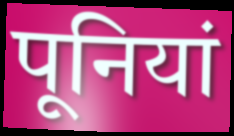
पूनियां